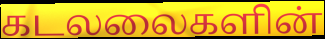
கடலலைகளின்